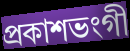
প্ৰকাশভংগী